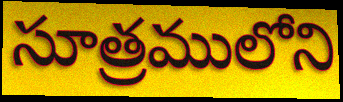
సూత్రములోని